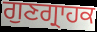
ਗੁਣਗ੍ਰਾਹਕ